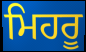
ਮਿਹਰੂ